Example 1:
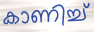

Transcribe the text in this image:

കാണിച്ച്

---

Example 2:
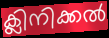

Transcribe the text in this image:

ക്ലിനിക്കൽ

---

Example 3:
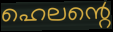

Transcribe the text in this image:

ഹെലന്റെ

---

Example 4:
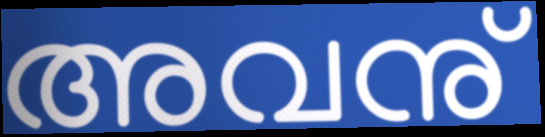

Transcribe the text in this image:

അവനു്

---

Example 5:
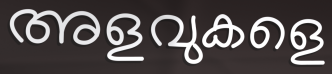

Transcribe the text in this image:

അളവുകളെ